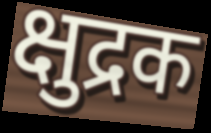
क्षुद्रक